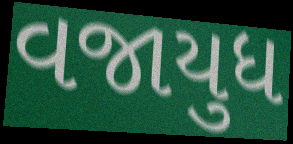
વજાયુધ